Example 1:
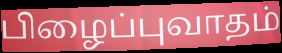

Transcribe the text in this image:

பிழைப்புவாதம்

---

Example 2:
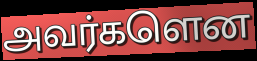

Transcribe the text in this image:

அவர்களென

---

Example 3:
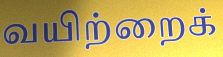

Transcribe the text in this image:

வயிற்றைக்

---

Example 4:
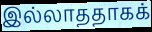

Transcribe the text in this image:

இல்லாததாகக்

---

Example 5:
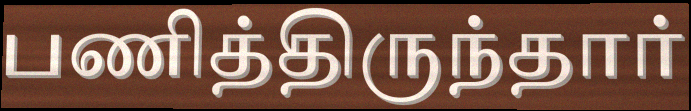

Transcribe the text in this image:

பணித்திருந்தார்